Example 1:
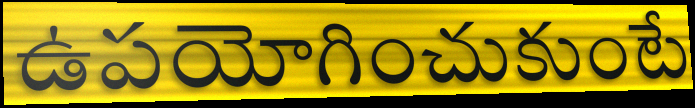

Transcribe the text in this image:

ఉపయోగించుకుంటే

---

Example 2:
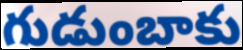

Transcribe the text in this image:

గుడుంబాకు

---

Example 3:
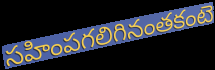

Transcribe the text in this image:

సహింపగలిగినంతకంటె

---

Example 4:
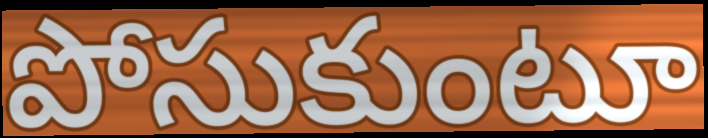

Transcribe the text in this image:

పోసుకుంటూ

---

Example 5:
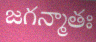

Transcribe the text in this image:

జగన్మాతః